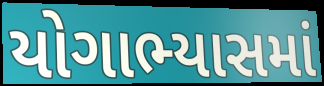
યોગાભ્યાસમાં